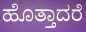
ಹೊತ್ತಾದರೆ